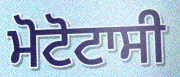
ਮੋਟੋਟਾਸੀ